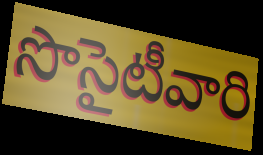
సొసైటీవారి